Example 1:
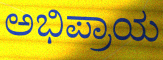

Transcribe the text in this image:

ಅಭಿಪ್ರಾಯ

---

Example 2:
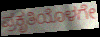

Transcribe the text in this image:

ಪ್ರಕೃತಿಯೊಳಗೇ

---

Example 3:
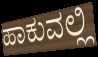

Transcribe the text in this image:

ಹಾಕುವಲ್ಲಿ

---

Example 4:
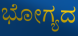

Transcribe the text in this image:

ಭೋಗ್ಯದ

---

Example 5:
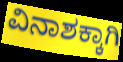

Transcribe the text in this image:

ವಿನಾಶಕ್ಕಾಗಿ